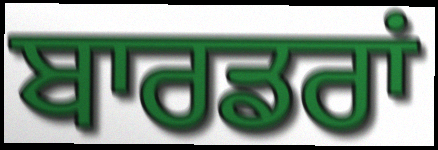
ਬਾਰਡਰਾਂ